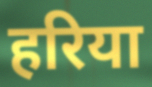
हरिया